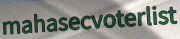
mahasecvoterlist